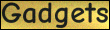
Gadgets